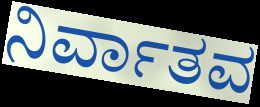
ನಿರ್ವಾತವ